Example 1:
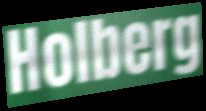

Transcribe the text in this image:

Holberg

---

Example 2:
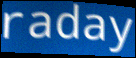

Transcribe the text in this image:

raday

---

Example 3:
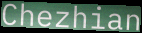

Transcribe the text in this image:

Chezhian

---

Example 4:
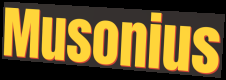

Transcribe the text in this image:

Musonius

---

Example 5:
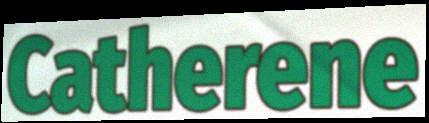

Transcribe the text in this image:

Catherene